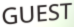
GUEST